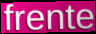
frente